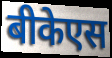
बीकेएस